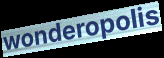
wonderopolis